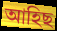
আহিছ